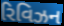
રિવિઝન